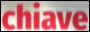
chiave